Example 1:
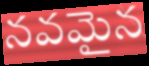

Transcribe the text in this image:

నవమైన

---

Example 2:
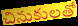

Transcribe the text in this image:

చినుకులతో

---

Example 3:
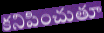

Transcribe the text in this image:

కనిపించుతూ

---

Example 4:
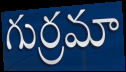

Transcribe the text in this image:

గుర్రమా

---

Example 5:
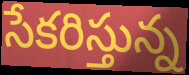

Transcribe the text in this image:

సేకరిస్తున్న